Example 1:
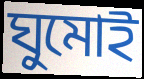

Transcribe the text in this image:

ঘুমোই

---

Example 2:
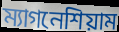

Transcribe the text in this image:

ম্যাগনেশিয়াম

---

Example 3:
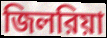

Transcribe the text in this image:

জিলরিয়া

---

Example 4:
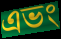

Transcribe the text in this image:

এভং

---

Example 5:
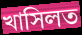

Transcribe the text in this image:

খাসিলত